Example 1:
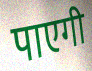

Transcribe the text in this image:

पाएगी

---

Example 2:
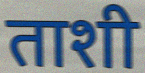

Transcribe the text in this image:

ताशी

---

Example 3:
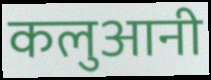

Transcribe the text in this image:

कलुआनी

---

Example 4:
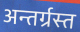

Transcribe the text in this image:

अन्तर्ग्रस्त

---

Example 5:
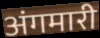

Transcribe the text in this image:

अंगमारी